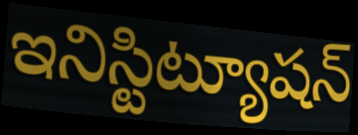
ఇనిస్టిట్యూషన్